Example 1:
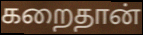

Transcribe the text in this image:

கறைதான்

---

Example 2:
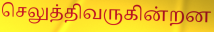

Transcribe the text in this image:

செலுத்திவருகின்றன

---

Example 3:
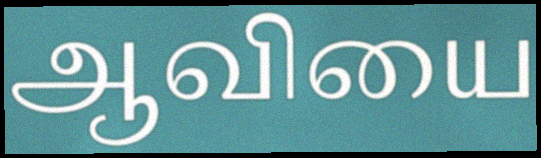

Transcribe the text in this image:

ஆவியை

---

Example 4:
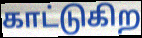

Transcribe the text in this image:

காட்டுகிற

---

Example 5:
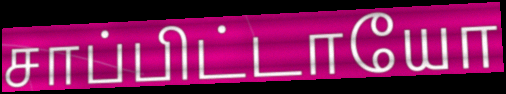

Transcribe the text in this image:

சாப்பிட்டாயோ